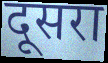
दूसरा